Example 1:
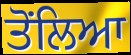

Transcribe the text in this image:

ਤੋਂਲਿਆ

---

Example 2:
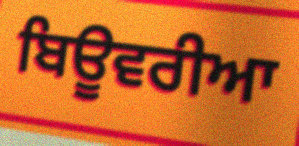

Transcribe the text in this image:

ਬਿਊਵਰੀਆ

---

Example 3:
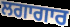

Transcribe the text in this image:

ਲਗਾਗਾਰ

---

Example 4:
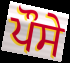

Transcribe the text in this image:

ਪੌਸੇ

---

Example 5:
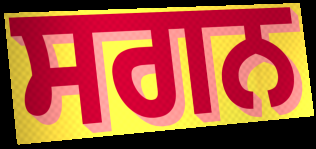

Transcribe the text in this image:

ਸਗਨ